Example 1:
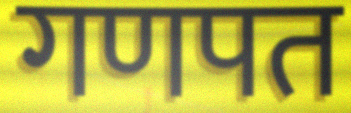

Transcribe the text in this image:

गणपत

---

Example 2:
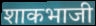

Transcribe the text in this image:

शाकभाजी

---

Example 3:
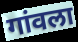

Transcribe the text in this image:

गांवला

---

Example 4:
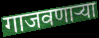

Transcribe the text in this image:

गाजवणाऱ्या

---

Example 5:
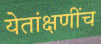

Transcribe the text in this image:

येतांक्षणींच